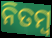
ନିତମ୍ୱ